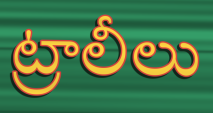
ట్రాలీలు